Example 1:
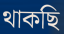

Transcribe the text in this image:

থাকছি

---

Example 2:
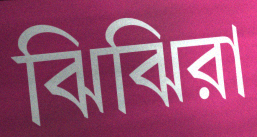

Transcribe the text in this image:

ঝিঝিরা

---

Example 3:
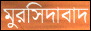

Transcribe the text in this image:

মুরসিদাবাদ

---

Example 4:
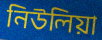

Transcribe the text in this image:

নিউলিয়া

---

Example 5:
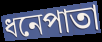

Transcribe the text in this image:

ধনেপাতা